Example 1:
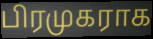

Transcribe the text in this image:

பிரமுகராக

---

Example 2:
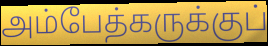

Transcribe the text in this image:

அம்பேத்கருக்குப்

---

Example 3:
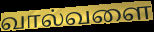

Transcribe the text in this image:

வால்வளை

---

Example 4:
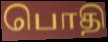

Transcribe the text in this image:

பொதி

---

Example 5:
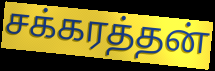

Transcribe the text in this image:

சக்கரத்தன்